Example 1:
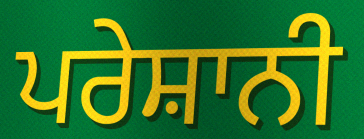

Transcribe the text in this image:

ਪਰੇਸ਼ਾਨੀ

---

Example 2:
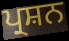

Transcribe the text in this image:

ਪ੍ਰਸ਼ਨ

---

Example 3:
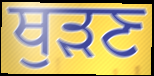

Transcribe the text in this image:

ਥੁੜਣ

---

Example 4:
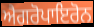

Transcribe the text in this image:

ਐਗਰੋਪਾਇਰੋਨ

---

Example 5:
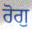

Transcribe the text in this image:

ਰੋਗੁ